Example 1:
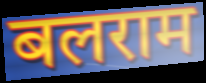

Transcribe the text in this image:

बलराम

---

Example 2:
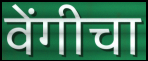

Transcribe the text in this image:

वेंगीचा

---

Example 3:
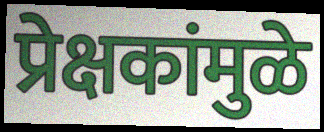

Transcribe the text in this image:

प्रेक्षकांमुळे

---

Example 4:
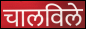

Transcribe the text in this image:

चालविले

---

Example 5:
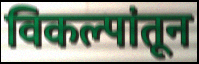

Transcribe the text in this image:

विकल्पांतून